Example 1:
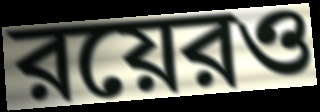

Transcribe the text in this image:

রয়েরও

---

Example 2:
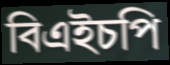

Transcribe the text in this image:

বিএইচপি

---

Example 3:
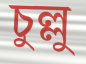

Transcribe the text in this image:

চুল্লু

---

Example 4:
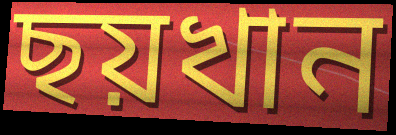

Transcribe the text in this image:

ছয়খান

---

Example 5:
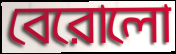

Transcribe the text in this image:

বেরোলো